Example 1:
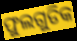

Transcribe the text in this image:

ଫୁଲଗୁଡିକ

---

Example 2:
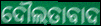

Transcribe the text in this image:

ଦୌଲତାବାଦ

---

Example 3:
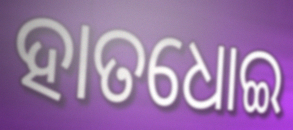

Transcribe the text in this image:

ହାତଧୋଇ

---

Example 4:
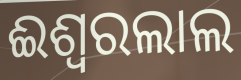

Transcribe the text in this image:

ଈଶ୍ଵରଲାଲ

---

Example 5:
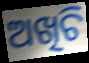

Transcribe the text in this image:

ଅଖିଚି